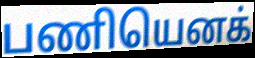
பணியெனக்